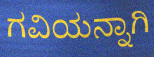
ಗವಿಯನ್ನಾಗಿ